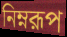
নিম্নরূপ